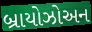
બ્રાયોઝોઅન